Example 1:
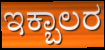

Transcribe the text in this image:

ಇಕ್ಬಾಲರ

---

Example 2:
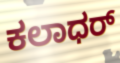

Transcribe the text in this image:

ಕಲಾಧರ್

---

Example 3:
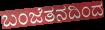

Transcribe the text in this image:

ಬಂಜೆತನದಿಂದ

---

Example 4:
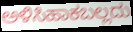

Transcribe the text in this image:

ಅಳಿಸಿಹಾಕಬಲ್ಲದು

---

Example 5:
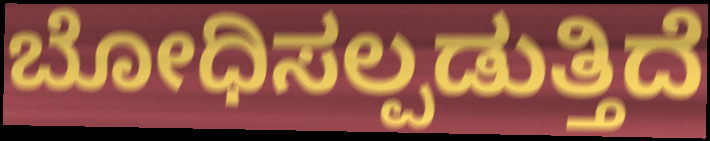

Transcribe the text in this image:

ಬೋಧಿಸಲ್ಪಡುತ್ತಿದೆ